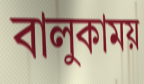
বালুকাময়